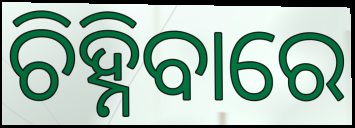
ଚିହ୍ନିବାରେ